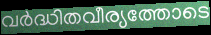
വർദ്ധിതവീര്യത്തോടെ